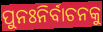
ପୁନଃନିର୍ବାଚନକୁ